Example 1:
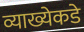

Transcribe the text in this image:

व्याख्येकडे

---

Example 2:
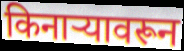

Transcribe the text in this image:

किनाऱ्यावरून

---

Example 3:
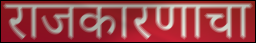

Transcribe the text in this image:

राजकारणाचा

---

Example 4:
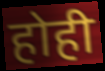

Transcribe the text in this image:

होही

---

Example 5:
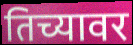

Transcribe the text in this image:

तिच्यावर